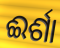
ଈର୍ଶା